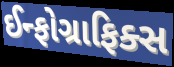
ઈન્ફોગ્રાફિક્સ